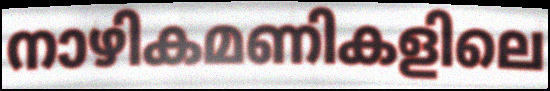
നാഴികമണികളിലെ